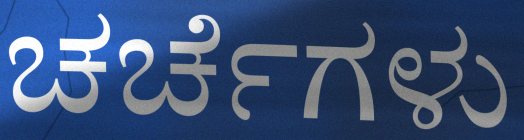
ಚರ್ಚೆಗಳು